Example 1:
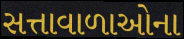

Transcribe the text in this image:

સત્તાવાળાઓના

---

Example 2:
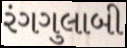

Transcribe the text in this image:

રંગગુલાબી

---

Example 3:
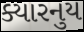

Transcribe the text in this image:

ક્યારનુય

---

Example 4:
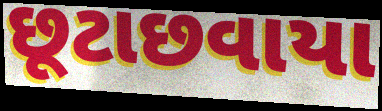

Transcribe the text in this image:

છૂટાછવાયા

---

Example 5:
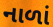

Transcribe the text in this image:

નાળાં